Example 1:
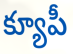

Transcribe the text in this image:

క్యూపీ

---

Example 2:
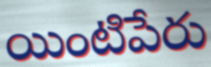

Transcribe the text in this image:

యింటిపేరు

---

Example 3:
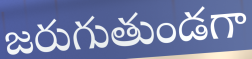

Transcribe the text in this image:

జరుగుతుండగా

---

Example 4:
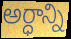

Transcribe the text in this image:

అర్ధాన్ని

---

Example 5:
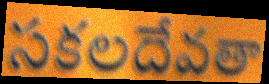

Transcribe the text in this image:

సకలదేవతా